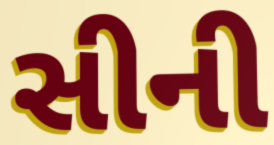
સીની